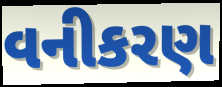
વનીકરણ